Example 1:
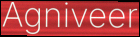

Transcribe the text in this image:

Agniveer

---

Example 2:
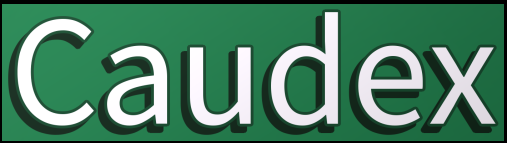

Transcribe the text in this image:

Caudex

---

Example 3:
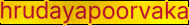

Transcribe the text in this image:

hrudayapoorvaka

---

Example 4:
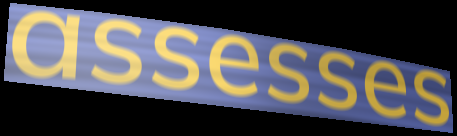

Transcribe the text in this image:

assesses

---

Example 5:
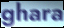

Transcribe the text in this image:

ghara